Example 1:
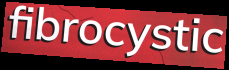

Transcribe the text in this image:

fibrocystic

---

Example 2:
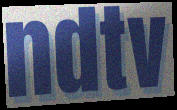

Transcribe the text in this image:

ndtv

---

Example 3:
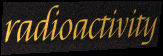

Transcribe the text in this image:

radioactivity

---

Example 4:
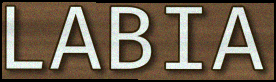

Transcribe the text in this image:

LABIA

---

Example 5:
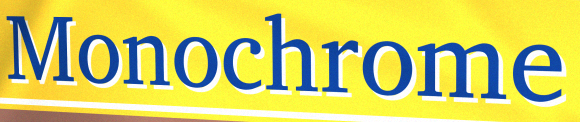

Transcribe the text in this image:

Monochrome